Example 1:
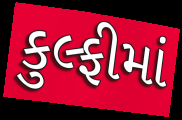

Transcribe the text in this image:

કુલ્ફીમાં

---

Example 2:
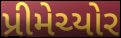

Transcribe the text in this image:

પ્રીમેચ્યોર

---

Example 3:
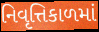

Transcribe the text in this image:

નિવૃત્તિકાળમાં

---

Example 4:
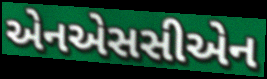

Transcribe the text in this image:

એનએસસીએન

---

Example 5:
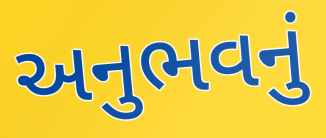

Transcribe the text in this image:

અનુભવનું